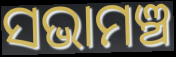
ସଭାମଞ୍ଚ